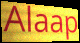
Alaap